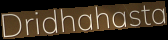
Dridhahasta